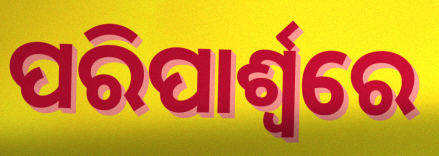
ପରିପାର୍ଶ୍ୱରେ